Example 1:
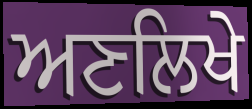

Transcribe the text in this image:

ਅਣਲਿਖੇ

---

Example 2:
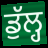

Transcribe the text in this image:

ਡੁੱਲ੍ਹ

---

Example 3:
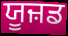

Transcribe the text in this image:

ਯੂਜ਼ਡ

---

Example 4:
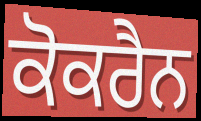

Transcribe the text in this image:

ਕੋਕਰੈਨ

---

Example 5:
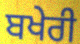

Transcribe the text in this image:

ਬਖੇਰੀ